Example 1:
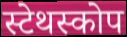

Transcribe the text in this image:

स्टेथस्कोप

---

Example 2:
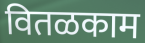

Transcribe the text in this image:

वितळकाम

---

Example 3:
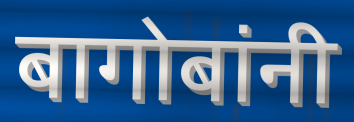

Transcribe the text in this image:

बागोबांनी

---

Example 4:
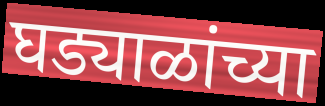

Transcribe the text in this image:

घड्याळांच्या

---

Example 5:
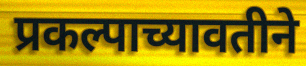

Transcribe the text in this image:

प्रकल्पाच्यावतीने